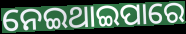
ନେଇଥାଇପାରେ